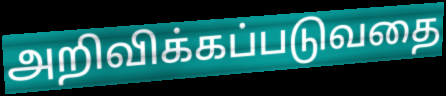
அறிவிக்கப்படுவதை